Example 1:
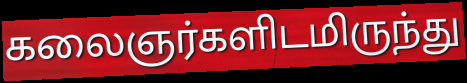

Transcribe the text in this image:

கலைஞர்களிடமிருந்து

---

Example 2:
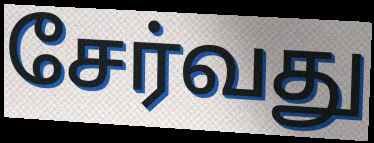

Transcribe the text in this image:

சேர்வது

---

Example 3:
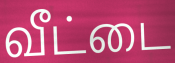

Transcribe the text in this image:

வீட்டை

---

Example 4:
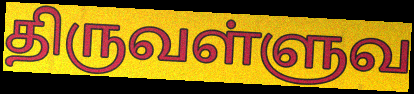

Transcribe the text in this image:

திருவள்ளுவ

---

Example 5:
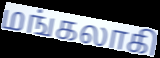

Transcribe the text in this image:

மங்கலாகி